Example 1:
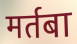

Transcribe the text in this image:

मर्तबा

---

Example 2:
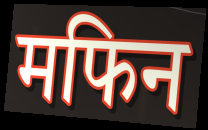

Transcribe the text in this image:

मफिन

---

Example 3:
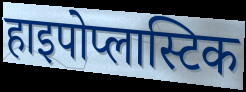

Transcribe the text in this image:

हाइपोप्लास्टिक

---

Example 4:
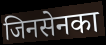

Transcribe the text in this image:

जिनसेनका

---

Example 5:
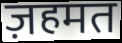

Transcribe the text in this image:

ज़हमत